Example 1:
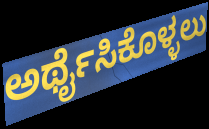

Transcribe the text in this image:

ಅರ್ಥೈಸಿಕೊಳ್ಳಲು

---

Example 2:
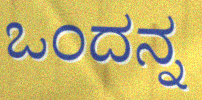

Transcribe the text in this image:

ಒಂದನ್ನ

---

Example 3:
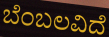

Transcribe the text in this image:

ಬೆಂಬಲವಿದೆ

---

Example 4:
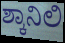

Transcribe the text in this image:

ಶ್ಕಾನಿಲಿ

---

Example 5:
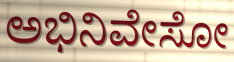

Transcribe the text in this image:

ಅಭಿನಿವೇಸೋ